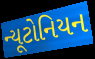
ન્યૂટોનિયન